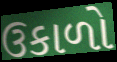
ઉકાળો